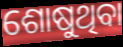
ଶୋଷୁଥିବା